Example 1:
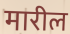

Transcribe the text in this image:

मारील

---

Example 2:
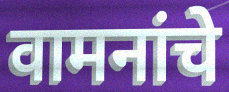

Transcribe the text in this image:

वामनांचे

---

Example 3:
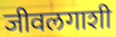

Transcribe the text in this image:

जीवलगाशी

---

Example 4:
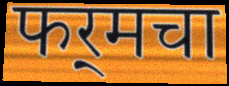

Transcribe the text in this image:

फर्मचा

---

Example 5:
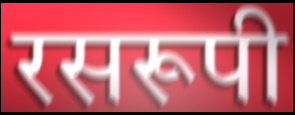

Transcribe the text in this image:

रसरूपी